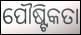
ପୌଷ୍ଟିକତା